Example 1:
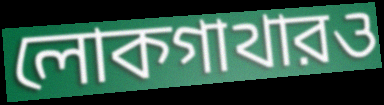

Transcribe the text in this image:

লোকগাথারও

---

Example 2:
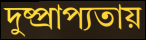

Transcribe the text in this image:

দুষ্প্রাপ্যতায়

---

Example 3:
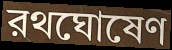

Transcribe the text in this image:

রথঘোষেণ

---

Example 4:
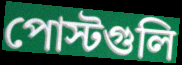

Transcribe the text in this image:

পোস্টগুলি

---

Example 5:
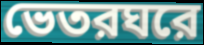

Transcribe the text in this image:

ভেতরঘরে